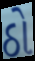
ઠો